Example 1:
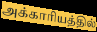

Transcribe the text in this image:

அக்காரியத்தில்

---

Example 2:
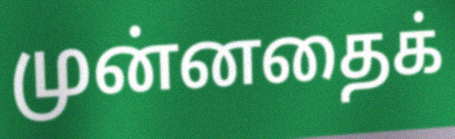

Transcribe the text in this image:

முன்னதைக்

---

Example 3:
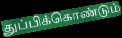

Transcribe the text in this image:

துப்பிக்கொண்டும்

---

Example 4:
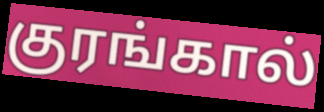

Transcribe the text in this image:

குரங்கால்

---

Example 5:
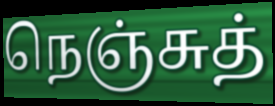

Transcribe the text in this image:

நெஞ்சுத்